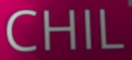
CHIL